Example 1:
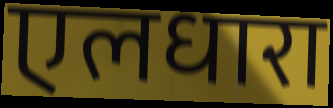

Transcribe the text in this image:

एलधारा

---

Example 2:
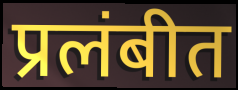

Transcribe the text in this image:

प्रलंबीत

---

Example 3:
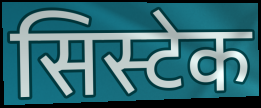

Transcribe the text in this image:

सिस्टेक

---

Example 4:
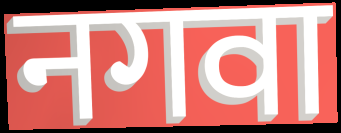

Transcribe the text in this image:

नगवा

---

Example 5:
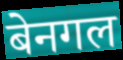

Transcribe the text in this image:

बेनगल